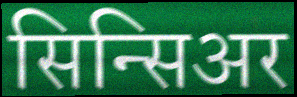
सिन्सिअर